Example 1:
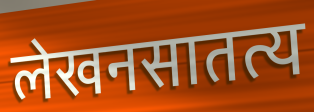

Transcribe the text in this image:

लेखनसातत्य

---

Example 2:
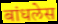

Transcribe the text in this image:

बांधलेस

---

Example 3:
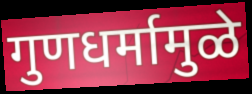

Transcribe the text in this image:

गुणधर्मामुळे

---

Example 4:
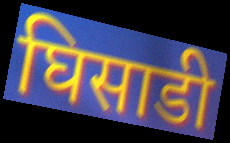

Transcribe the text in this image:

घिसाडी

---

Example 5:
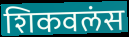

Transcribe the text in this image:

शिकवलंस